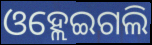
ଓହ୍ଲେଇଗଲି